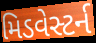
મિડવેસ્ટર્ન